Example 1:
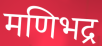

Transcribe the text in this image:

मणिभद्र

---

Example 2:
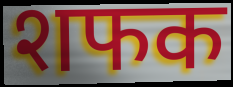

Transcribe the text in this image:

शफक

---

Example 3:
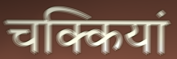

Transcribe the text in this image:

चक्कियां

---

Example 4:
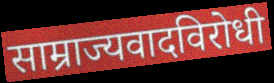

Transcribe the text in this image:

साम्राज्यवादविरोधी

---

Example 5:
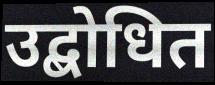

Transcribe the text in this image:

उद्बोधित